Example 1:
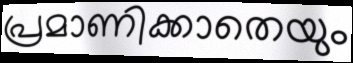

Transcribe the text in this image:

പ്രമാണിക്കാതെയും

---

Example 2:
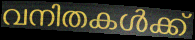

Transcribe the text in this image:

വനിതകൾക്ക്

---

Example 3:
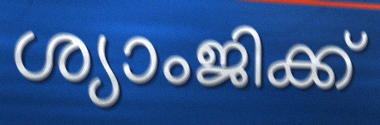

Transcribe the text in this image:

ശ്യാംജിക്ക്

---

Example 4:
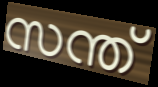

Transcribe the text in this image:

സന്ത്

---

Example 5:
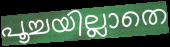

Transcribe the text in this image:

പൂച്ചയില്ലാതെ